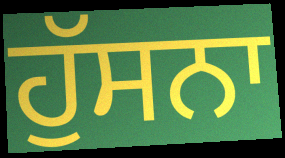
ਹੁੱਸਨਾ